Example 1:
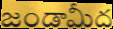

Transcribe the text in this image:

జండామీద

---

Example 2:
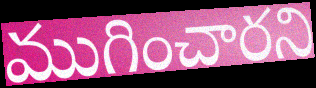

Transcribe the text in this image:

ముగించారని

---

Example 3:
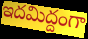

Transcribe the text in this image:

ఇదమిద్దంగా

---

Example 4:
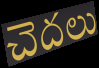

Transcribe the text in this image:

చెదలు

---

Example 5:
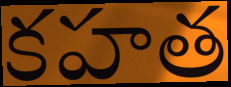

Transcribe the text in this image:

కహత